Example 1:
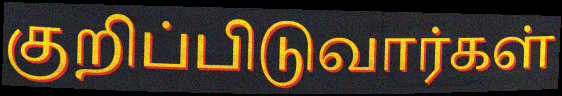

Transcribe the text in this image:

குறிப்பிடுவார்கள்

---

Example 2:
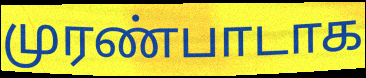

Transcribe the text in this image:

முரண்பாடாக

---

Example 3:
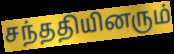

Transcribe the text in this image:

சந்ததியினரும்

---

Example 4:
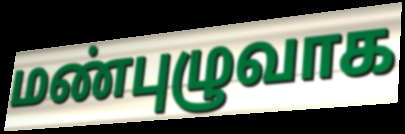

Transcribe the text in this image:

மண்புழுவாக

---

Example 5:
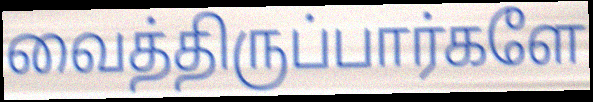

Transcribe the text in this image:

வைத்திருப்பார்களே